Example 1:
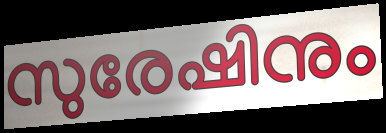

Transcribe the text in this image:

സുരേഷിനും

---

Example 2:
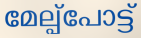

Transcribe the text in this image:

മേല്പ്പോട്ട്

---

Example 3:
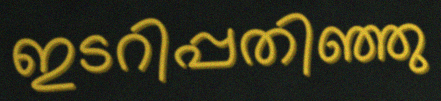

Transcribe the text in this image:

ഇടറിപ്പതിഞ്ഞു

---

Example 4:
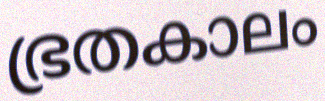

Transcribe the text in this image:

ഭ്രതകാലം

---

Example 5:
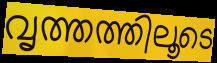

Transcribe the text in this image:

വൃത്തത്തിലൂടെ